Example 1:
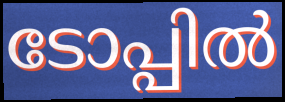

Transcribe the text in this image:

ടോപ്പിൽ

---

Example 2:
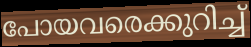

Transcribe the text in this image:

പോയവരെക്കുറിച്ച്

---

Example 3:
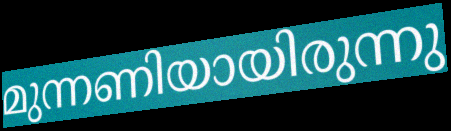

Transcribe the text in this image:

മുന്നണിയായിരുന്നു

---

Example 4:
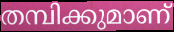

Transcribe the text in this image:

തമ്പിക്കുമാണ്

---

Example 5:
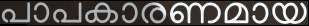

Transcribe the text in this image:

പാപകാരണമായ